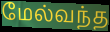
மேல்வந்த